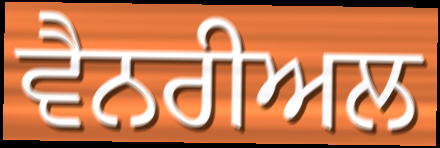
ਵੈਨਰੀਅਲ